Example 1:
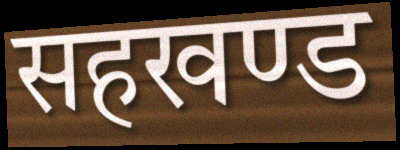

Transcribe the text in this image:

सहखण्ड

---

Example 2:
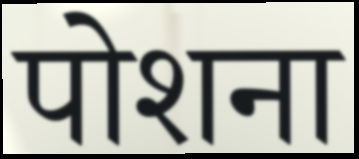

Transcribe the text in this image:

पोशना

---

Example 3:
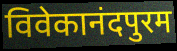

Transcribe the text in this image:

विवेकानंदपुरम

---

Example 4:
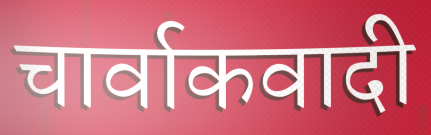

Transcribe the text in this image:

चार्वाकवादी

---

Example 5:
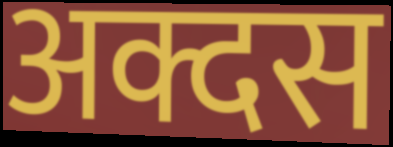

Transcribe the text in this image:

अक्दस